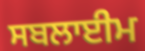
ਸਬਲਾਈਮ